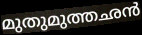
മുതുമുത്തഛൻ